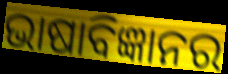
ଭାଷାବିଜ୍ଞାନର